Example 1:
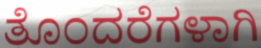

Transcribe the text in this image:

ತೊಂದರೆಗಳಾಗಿ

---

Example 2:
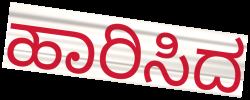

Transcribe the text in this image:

ಹಾರಿಸಿದ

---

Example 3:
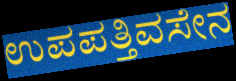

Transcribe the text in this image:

ಉಪಪತ್ತಿವಸೇನ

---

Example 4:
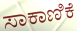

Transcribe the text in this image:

ಸಾಕಾಣಿಕೆ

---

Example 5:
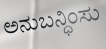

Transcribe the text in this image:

ಅನುಬನ್ಧಿಂಸು